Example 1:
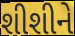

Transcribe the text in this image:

શીશીને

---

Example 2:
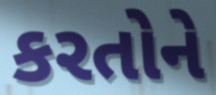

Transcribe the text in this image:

કરતોને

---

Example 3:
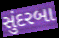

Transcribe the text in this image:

સુંદરબા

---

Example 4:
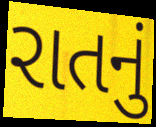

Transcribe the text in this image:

રાતનું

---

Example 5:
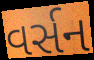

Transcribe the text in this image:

વર્સન